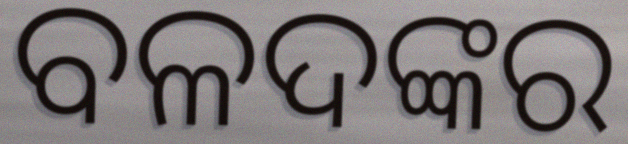
ବଳଦଙ୍କର